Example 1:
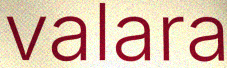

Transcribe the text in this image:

valara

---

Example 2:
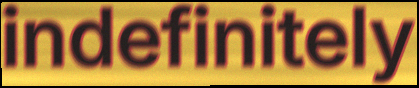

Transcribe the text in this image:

indefinitely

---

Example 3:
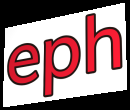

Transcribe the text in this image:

eph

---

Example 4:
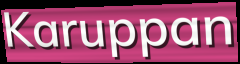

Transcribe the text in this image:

Karuppan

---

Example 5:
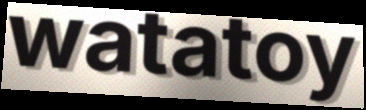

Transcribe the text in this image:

watatoy